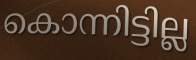
കൊന്നിട്ടില്ല